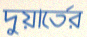
দুয়ার্তের